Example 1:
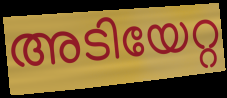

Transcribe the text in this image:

അടിയേറ്റ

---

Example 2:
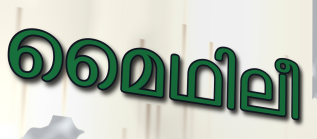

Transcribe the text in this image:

മൈഥിലീ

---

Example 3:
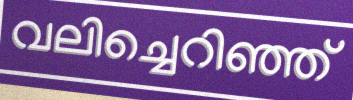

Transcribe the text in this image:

വലിച്ചെറിഞ്ഞ്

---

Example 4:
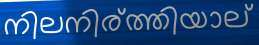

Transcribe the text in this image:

നിലനിര്ത്തിയാല്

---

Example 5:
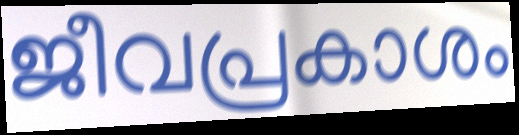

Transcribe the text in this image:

ജീവപ്രകാശം